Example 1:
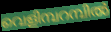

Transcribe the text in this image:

വെളിമ്പറമ്പിൽ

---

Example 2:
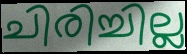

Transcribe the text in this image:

ചിരിച്ചില്ല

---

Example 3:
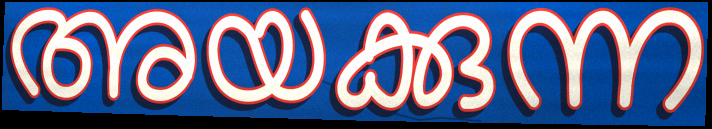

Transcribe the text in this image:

അയക്കുന്ന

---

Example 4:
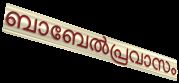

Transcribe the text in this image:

ബാബേൽപ്രവാസം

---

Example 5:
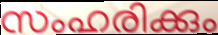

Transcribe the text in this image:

സംഹരിക്കും